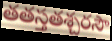
తతస్తతశ్చరసౌ